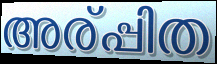
അര്പ്പിത